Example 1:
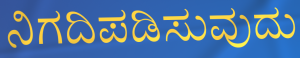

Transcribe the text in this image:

ನಿಗದಿಪಡಿಸುವುದು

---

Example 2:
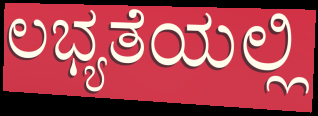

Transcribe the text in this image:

ಲಭ್ಯತೆಯಲ್ಲಿ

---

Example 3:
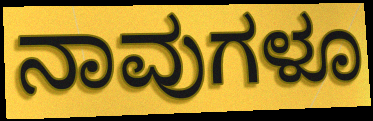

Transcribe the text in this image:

ನಾವುಗಳೂ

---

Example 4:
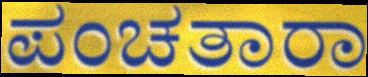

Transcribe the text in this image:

ಪಂಚತಾರಾ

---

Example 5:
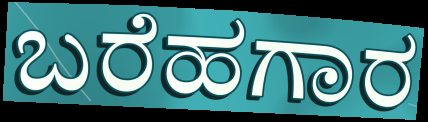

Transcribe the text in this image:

ಬರೆಹಗಾರ